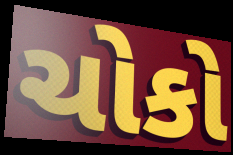
ચોકો